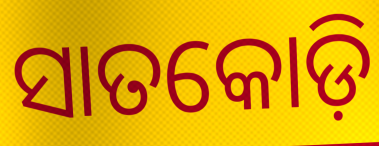
ସାତକୋଡ଼ି